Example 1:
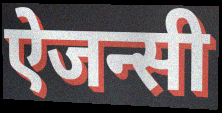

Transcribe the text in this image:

ऐजन्सी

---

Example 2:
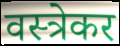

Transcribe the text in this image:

वस्त्रेकर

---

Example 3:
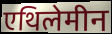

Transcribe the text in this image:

एथिलेमीन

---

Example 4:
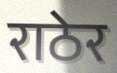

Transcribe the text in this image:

राठेर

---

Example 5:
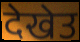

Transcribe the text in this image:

देखेउ